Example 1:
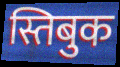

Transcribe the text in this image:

स्तिबुक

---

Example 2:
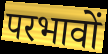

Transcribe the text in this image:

परभावों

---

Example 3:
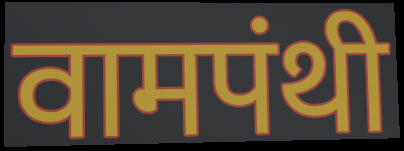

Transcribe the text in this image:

वामपंथी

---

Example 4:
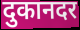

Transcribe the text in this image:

दुकानदर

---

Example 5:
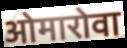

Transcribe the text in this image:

ओमारोवा